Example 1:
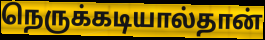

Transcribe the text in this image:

நெருக்கடியால்தான்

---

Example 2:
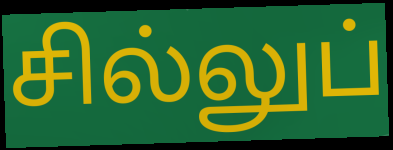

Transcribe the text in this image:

சில்லுப்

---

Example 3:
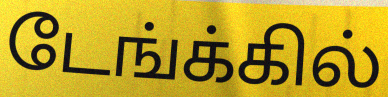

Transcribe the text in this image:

டேங்க்கில்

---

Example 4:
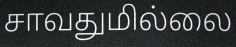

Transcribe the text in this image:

சாவதுமில்லை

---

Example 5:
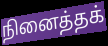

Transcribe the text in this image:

நினைத்தக்